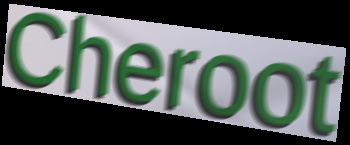
Cheroot